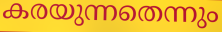
കരയുന്നതെന്നും